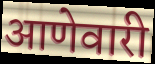
आणेवारी